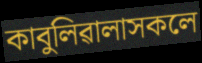
কাবুলিৱালাসকলে